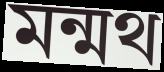
মন্মথ